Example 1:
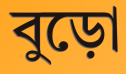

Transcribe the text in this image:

বুড়ো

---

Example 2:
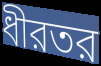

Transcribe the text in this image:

ধীরতর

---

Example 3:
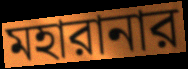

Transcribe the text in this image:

মহারানার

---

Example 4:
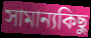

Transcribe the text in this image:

সামান্যকিছু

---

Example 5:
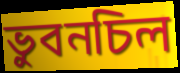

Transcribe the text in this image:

ভুবনচিল